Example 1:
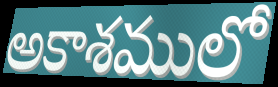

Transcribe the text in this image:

అకాశములో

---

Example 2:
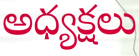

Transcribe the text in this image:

అధ్యక్షలు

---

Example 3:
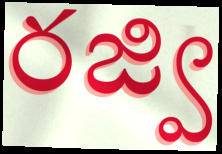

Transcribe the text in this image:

రజ్వి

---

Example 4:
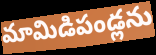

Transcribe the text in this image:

మామిడిపండ్లను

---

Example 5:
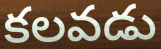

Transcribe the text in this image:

కలవడు